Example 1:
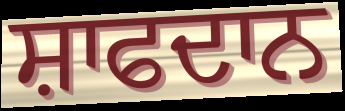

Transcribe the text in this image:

ਸ਼ਾਫਦਾਨ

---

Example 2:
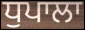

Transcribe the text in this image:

ਧੁਪਾਲਾ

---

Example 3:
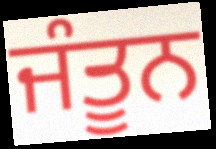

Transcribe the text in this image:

ਜੰਤੂਨ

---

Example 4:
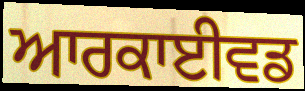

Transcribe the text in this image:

ਆਰਕਾਈਵਡ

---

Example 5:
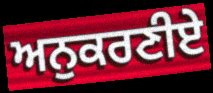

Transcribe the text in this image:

ਅਨੁਕਰਣੀਏ